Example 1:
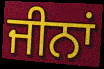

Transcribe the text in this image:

ਜੀਨਾਂ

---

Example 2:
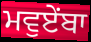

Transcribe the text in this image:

ਮਵੁਏਂਬਾ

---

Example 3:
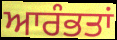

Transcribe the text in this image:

ਆਰੰਭਤਾਂ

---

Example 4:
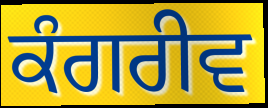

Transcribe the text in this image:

ਕੰਗਰੀਵ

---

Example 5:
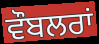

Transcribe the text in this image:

ਵੌਬਲਰਾਂ